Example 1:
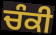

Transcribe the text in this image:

ਚੰਕੀ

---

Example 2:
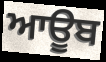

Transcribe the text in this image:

ਆਊਬ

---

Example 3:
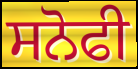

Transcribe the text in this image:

ਸਨੋਫੀ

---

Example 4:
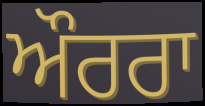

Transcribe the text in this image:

ਔਰਰਾ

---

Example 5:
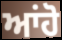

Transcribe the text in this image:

ਆਂਹੋ